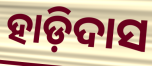
ହାଡ଼ିଦାସ